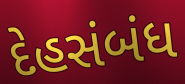
દેહસંબંધ